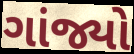
ગાંજ્યો